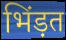
भिंड़त